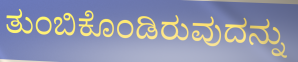
ತುಂಬಿಕೊಂಡಿರುವುದನ್ನು